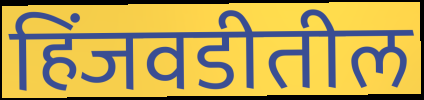
हिंजवडीतील